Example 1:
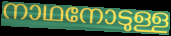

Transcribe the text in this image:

നാഥനോടുള്ള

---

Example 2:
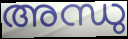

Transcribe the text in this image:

അന്ധു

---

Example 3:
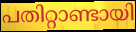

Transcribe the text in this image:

പതിറ്റാണ്ടായി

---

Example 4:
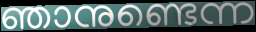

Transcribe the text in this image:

ഞാനുണ്ടെന്ന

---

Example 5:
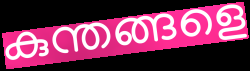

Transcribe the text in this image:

കുന്തങ്ങളെ